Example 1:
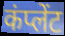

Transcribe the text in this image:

कंप्लेंट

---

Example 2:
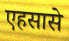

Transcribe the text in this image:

एहसासे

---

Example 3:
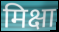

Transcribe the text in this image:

मिक्षा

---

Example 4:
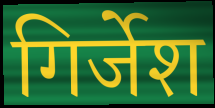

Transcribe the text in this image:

गिर्जेश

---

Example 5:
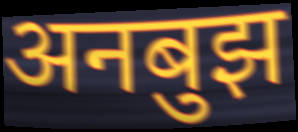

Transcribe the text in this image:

अनबुझ